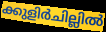
ക്കുളിർചില്ലിൽ